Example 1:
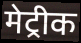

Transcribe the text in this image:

मेट्रीक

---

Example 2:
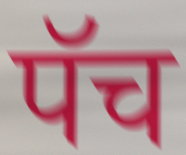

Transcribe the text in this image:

पॅच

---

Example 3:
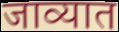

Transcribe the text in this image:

जाव्यात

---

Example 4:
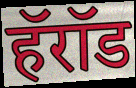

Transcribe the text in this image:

हॅरॉड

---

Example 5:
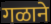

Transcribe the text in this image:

गळाने